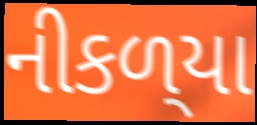
નીકળ્‌યા